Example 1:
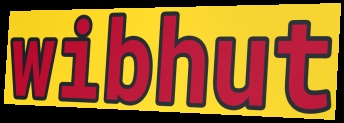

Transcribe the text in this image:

wibhut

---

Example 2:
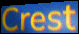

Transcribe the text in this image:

Crest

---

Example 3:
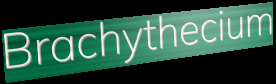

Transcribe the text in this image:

Brachythecium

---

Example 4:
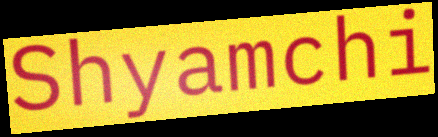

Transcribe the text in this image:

Shyamchi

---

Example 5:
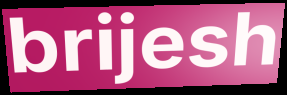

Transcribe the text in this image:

brijesh